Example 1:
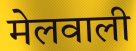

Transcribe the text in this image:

मेलवाली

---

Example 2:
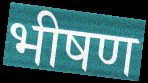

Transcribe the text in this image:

भीषण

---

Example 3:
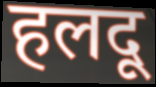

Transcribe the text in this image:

हलदू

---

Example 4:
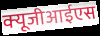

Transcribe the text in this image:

क्यूजीआईएस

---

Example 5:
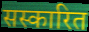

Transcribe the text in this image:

सस्कारित